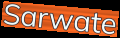
Sarwate